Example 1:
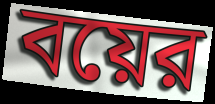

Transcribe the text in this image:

বয়ের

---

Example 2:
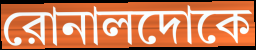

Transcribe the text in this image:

রোনালদোকে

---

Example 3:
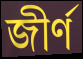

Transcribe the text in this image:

জীর্ণ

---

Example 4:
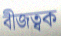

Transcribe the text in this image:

বীজত্বক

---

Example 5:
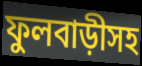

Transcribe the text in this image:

ফুলবাড়ীসহ